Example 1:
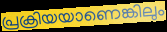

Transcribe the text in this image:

പ്രക്രിയയാണെങ്കിലും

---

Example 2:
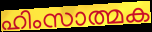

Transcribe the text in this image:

ഹിംസാത്മക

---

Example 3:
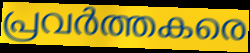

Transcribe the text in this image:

പ്രവർത്തകരെ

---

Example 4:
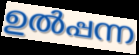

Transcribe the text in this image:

ഉൽപ്പന്ന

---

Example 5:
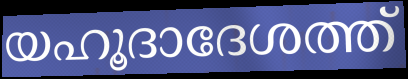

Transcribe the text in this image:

യഹൂദാദേശത്ത്